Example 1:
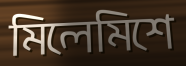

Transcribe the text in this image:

মিলেমিশে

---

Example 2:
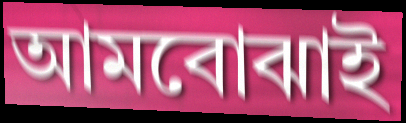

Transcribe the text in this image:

আমবোঝাই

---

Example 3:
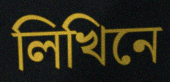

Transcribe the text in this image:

লিখিনে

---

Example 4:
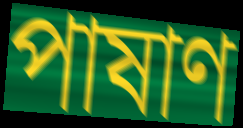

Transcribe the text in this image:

পাষাণ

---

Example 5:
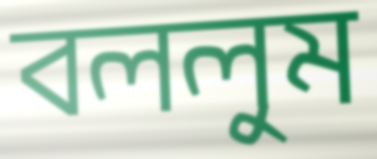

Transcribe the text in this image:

বললুম